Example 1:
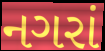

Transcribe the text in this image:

નગરાં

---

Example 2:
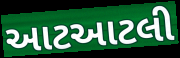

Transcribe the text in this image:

આટઆટલી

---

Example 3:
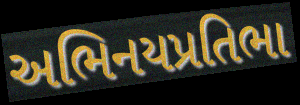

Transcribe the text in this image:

અભિનયપ્રતિભા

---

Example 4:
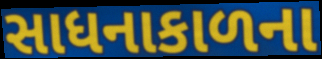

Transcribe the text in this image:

સાધનાકાળના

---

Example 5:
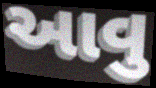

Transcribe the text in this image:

આવુ